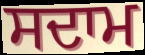
ਸਦਾਮ